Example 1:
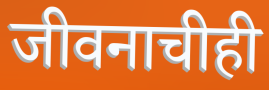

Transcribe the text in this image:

जीवनाचीही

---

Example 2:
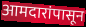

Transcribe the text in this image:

आमदारांपासून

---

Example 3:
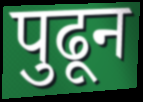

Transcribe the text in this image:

पुढून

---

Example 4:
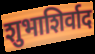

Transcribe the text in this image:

शुभाशिर्वाद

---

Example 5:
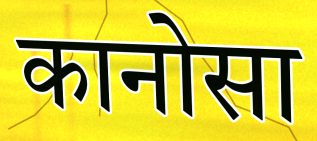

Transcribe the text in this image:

कानोसा